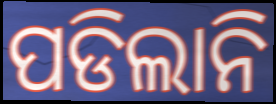
ପଡିଲାନି